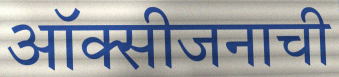
ऑक्सीजनाची